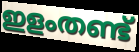
ഇളംതണ്ട്